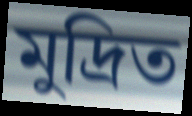
মুদ্ৰিত